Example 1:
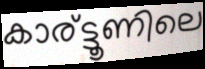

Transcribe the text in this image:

കാര്ട്ടൂണിലെ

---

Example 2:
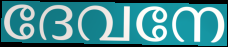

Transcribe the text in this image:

ദേവനേ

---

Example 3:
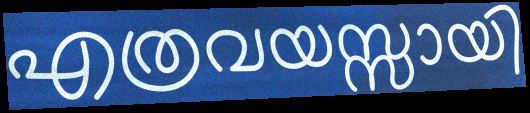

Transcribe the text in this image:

എത്രവയസ്സായി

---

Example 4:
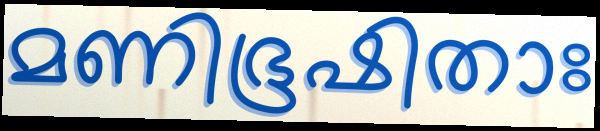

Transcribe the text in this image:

മണിഭൂഷിതാഃ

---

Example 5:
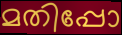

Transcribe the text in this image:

മതിപ്പോ